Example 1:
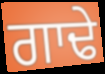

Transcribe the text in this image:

ਗਾਢੇ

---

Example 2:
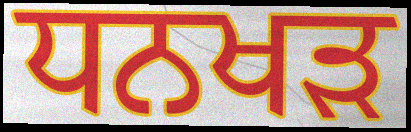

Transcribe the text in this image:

ਧਨਖਡ਼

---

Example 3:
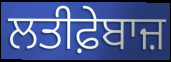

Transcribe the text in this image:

ਲਤੀਫ਼ੇਬਾਜ਼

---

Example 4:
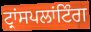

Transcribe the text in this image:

ਟ੍ਰਾਂਸਪਲਾਂਟਿੰਗ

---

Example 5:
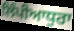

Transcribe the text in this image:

ਲਿੰਪੀਆਧੁਰਾ